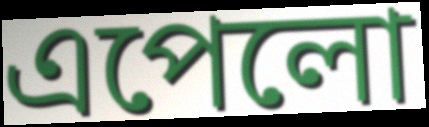
এপেলো